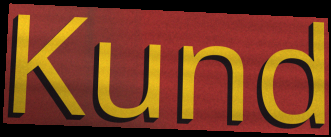
Kund